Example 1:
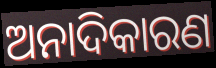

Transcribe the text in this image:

ଅନାଦିକାରଣ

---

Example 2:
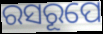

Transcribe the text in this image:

ରସରୂପେ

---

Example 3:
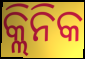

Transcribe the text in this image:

କ୍ଲିନିକ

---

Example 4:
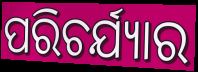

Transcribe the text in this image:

ପରିଚର୍ଯ୍ୟାର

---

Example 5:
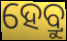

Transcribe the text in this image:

ହେବ୍ରୁ